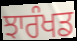
ਝਾਰੰਖਡ